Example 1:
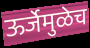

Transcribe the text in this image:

ऊर्जेमुळेच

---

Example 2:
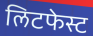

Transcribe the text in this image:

लिटफेस्ट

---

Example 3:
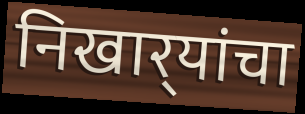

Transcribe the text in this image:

निखार्‍यांचा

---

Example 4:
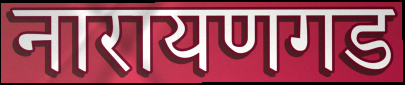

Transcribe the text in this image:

नारायणगड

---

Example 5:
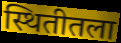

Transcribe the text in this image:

स्थितीतला